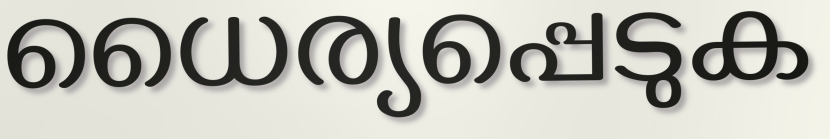
ധൈര്യപ്പെടുക